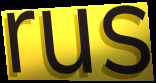
rus